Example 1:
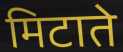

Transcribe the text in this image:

मिटाते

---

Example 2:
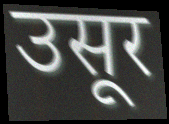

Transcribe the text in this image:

उसूर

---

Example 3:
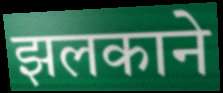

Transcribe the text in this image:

झलकाने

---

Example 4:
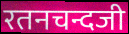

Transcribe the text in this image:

रतनचन्दजी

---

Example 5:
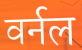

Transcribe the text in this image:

वर्नल